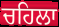
ਚਹਿਲਾ